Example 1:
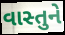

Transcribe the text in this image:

વાસ્તુને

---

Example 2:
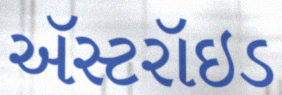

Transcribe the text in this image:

ઍસ્ટરૉઇડ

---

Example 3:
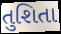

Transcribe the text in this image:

તુશિતા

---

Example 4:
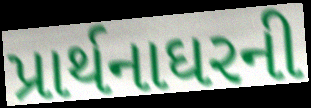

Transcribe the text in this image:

પ્રાર્થનાઘરની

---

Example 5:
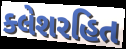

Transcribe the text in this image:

ક્લેશરહિત